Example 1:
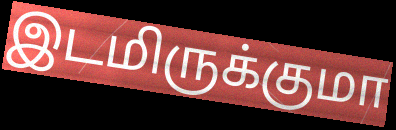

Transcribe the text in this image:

இடமிருக்குமா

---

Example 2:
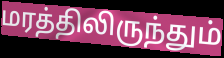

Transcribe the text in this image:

மரத்திலிருந்தும்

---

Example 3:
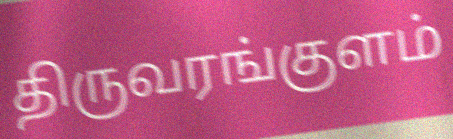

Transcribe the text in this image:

திருவரங்குளம்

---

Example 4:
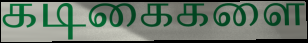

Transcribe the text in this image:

கடிகைகளை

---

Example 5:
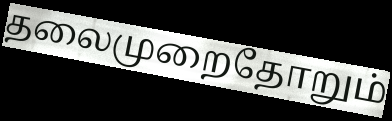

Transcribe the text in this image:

தலைமுறைதோறும்